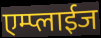
एम्प्लाईज